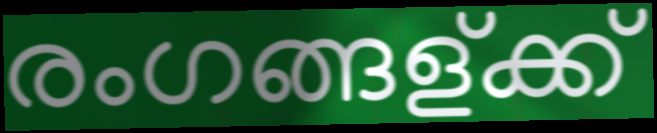
രംഗങ്ങള്ക്ക്